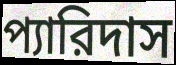
প্যারিদাস